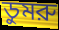
ডুমরু